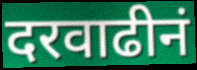
दरवाढीनं